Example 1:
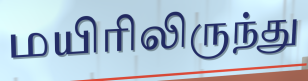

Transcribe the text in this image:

மயிரிலிருந்து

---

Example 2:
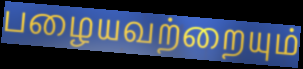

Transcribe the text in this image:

பழையவற்றையும்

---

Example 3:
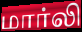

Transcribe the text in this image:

மார்லி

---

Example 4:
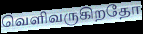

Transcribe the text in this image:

வெளிவருகிறதோ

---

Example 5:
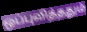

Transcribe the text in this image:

ஒப்புவித்ததும்